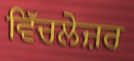
ਵਿੱਚਲੇਜ਼ਰ